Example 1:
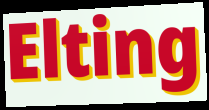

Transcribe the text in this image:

Elting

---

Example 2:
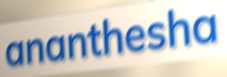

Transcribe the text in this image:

ananthesha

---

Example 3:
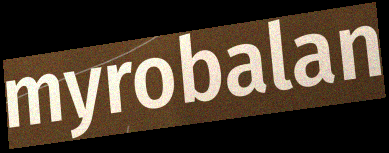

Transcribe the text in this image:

myrobalan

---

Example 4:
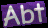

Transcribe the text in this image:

Abt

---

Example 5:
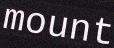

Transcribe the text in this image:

mount